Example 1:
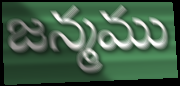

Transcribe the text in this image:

జన్మము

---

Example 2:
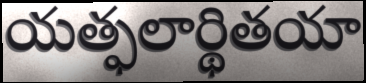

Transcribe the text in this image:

యత్ఫలార్థితయా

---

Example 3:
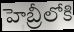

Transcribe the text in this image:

హెబ్రీలోకి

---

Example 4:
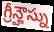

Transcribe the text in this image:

గ్రీన్హౌస్ను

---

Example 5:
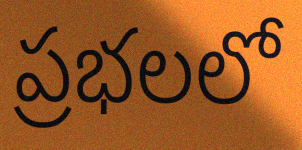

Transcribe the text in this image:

ప్రభలలో